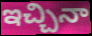
ఇచ్చినా